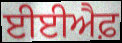
ਈਈਐਫ਼